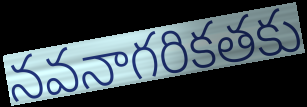
నవనాగరికతకు